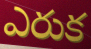
ఎరుక